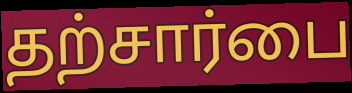
தற்சார்பை